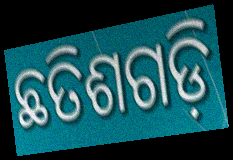
ଛତିଶଗଡ଼ି